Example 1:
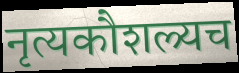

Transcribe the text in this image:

नृत्यकौशल्यच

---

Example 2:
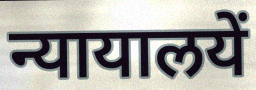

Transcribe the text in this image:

न्यायालयें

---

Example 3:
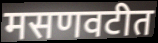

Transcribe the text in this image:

मसणवटीत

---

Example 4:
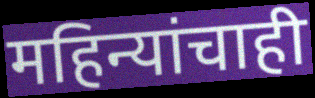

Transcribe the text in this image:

महिन्यांचाही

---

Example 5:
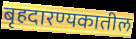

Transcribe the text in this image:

बृहदारण्यकातील